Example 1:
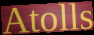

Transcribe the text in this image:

Atolls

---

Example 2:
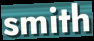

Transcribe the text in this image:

smith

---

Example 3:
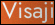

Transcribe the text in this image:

Visaji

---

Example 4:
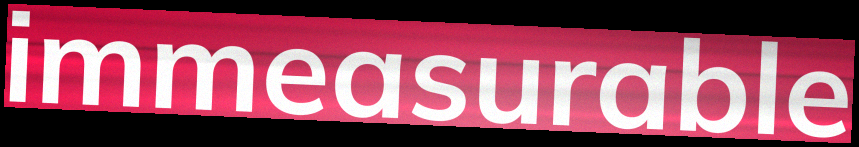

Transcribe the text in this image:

immeasurable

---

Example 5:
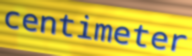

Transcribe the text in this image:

centimeter